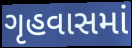
ગૃહવાસમાં